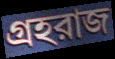
গ্রহরাজ